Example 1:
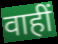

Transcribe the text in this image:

वाहीं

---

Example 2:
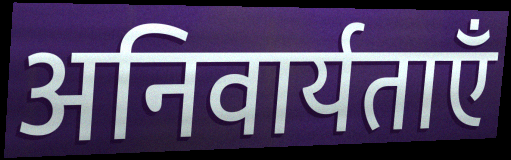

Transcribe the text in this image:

अनिवार्यताएँ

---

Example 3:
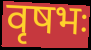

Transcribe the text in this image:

वृषभः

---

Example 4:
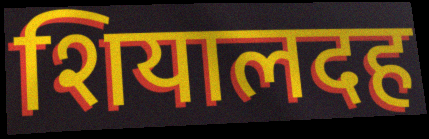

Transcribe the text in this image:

शियालदह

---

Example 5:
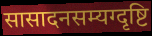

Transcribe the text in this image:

सासादनसम्यग्दृष्टि